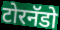
टोरनॅडो